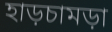
হাড়চামড়া